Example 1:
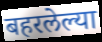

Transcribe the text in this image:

बहरलेल्या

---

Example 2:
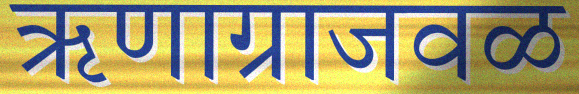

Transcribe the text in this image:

ऋणाग्राजवळ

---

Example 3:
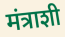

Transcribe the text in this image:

मंत्राशी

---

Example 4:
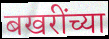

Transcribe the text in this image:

बखरींच्या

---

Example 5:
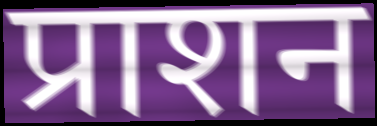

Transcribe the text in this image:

प्राशन